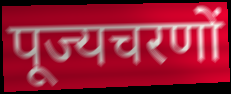
पूज्यचरणों